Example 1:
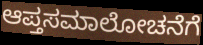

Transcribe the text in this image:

ಆಪ್ತಸಮಾಲೋಚನೆಗೆ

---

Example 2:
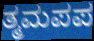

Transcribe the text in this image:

ತ್ಮಮಪಪ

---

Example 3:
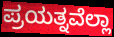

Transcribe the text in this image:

ಪ್ರಯತ್ನವೆಲ್ಲಾ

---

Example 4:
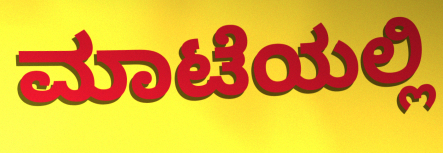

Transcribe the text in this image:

ಮಾಟೆಯಲ್ಲಿ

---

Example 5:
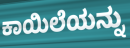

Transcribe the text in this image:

ಕಾಯಿಲೆಯನ್ನು